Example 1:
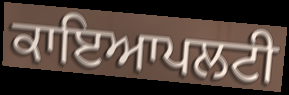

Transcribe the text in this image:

ਕਾਇਆਪਲਟੀ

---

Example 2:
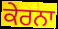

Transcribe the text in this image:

ਕੇਰਨਾ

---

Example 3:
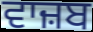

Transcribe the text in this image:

ਵਾਜ਼ਬ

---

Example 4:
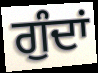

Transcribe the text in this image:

ਗੁੰਦਾਂ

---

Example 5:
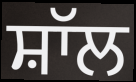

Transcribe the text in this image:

ਸ਼ਾੱਲ